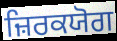
ਜ਼ਿਰਕਯੋਗ